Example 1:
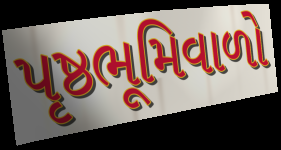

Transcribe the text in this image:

પૃષ્ઠભૂમિવાળો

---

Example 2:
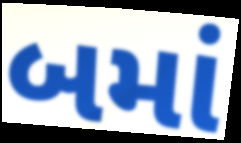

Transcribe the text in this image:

બમાં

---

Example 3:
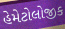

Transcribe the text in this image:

હેમેટોલોજીક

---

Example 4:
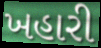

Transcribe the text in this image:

ખહારી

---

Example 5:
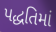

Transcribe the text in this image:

પદ્ધતિમાં